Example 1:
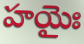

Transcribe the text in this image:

హయైః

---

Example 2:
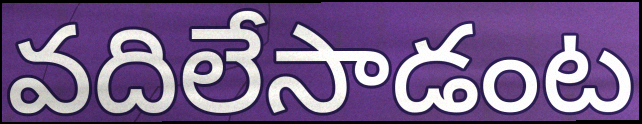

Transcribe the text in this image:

వదిలేసాడంట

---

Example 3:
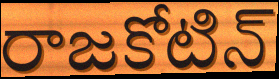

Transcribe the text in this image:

రాజకోటిన్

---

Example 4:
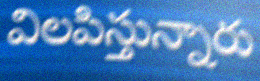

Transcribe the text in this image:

విలపిస్తున్నారు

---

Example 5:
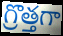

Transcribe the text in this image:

గ్రొత్తగా